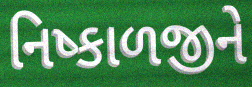
નિષ્કાળજીને